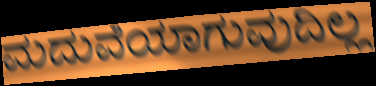
ಮದುವೆಯಾಗುವುದಿಲ್ಲ